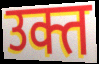
उक्‍त